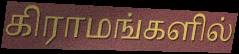
கிராமங்களில்